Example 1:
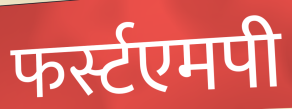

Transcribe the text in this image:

फर्स्टएमपी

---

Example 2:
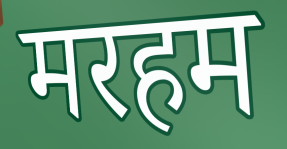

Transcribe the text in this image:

मरहम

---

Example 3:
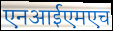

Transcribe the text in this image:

एनआईएमएच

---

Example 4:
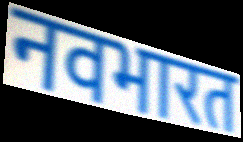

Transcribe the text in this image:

नवभारत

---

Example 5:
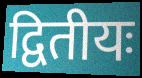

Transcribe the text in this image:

द्वितीयः